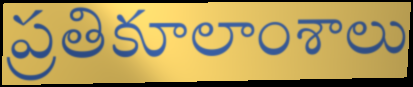
ప్రతికూలాంశాలు